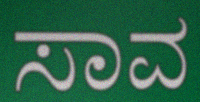
ಸಾವ